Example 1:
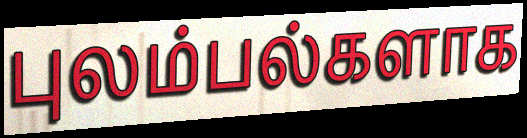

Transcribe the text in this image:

புலம்பல்களாக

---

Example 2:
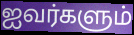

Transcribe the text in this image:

ஐவர்களும்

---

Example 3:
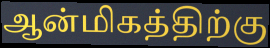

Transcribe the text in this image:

ஆன்மிகத்திற்கு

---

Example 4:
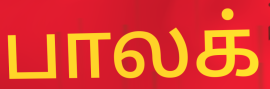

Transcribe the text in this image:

பாலக்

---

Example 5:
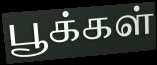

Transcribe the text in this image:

பூக்கள்